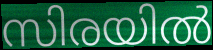
സിരയിൽ